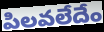
పిలవలేదేం